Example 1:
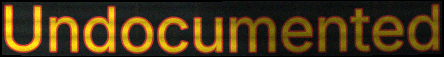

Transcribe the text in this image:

Undocumented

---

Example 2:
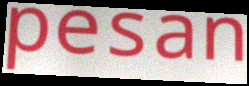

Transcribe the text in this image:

pesan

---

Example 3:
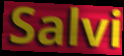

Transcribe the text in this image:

Salvi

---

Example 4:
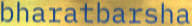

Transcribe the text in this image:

bharatbarsha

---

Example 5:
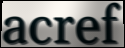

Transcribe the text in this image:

acref